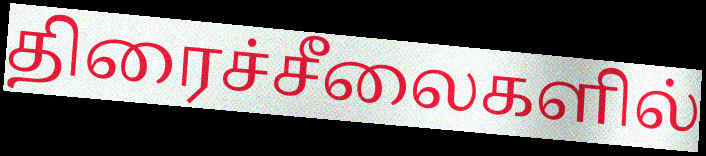
திரைச்சீலைகளில்